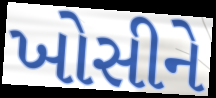
ખોસીને